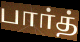
பார்த்